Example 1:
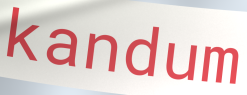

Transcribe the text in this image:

kandum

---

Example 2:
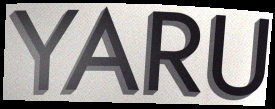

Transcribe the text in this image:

YARU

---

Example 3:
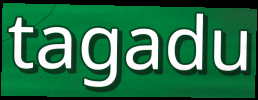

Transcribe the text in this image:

tagadu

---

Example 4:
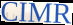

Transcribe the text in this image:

CIMR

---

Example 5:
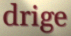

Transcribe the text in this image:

drige